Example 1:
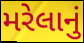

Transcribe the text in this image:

મરેલાનું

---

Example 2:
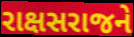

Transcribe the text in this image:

રાક્ષસરાજને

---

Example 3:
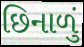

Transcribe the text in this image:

છિનાળું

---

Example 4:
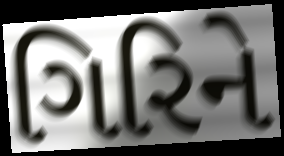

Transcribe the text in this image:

ગિરિને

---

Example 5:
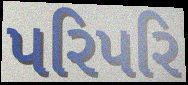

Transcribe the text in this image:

પરિપરિ